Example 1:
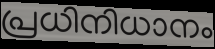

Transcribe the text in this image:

പ്രധിനിധാനം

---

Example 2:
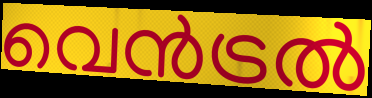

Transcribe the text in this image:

വെൻട്രൽ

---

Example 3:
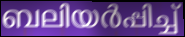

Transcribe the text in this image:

ബലിയർപ്പിച്ച്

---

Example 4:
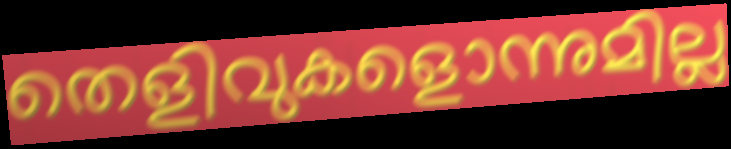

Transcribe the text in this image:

തെളിവുകളൊന്നുമില്ല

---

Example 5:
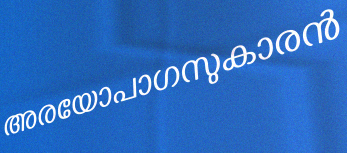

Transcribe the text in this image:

അരയോപാഗസുകാരൻ